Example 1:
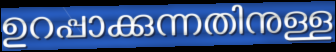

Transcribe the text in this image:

ഉറപ്പാക്കുന്നതിനുള്ള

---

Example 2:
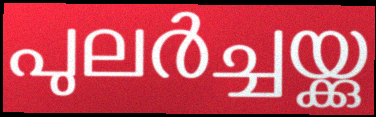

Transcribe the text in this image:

പുലർച്ചയ്ക്കു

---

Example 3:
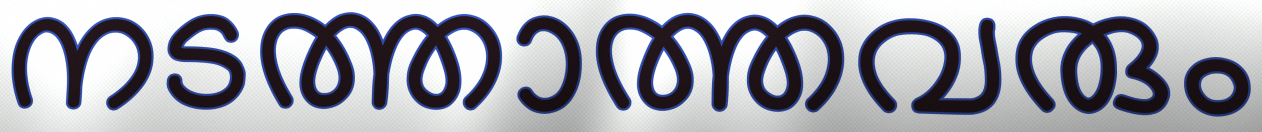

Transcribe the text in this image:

നടത്താത്തവരും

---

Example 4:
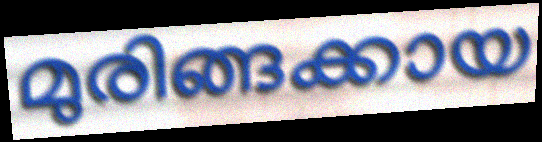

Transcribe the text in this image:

മുരിങ്ങക്കായ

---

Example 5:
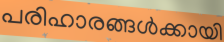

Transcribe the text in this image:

പരിഹാരങ്ങൾക്കായി